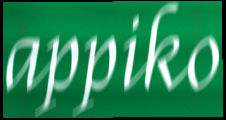
appiko